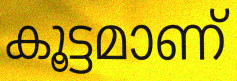
കൂട്ടമാണ്